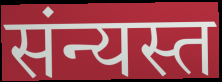
संन्यस्त